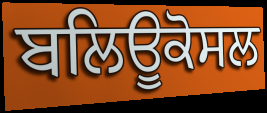
ਬਲਿਊਕੋਸਲ